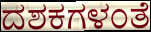
ದಶಕಗಳಂತೆ